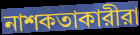
নাশকতাকারীরা